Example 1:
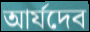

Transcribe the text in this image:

আর্যদেব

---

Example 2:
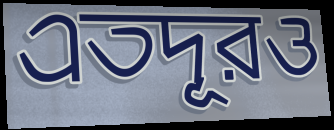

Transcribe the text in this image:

এতদূরও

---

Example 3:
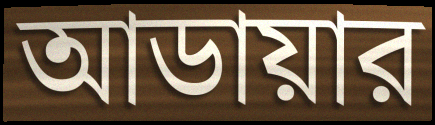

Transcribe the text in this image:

আডায়ার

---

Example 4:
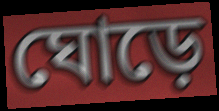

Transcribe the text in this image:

ঘোড়ে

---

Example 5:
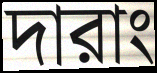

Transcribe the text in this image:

দারাং